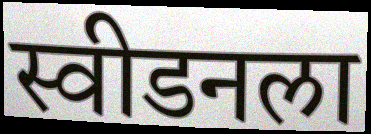
स्वीडनला